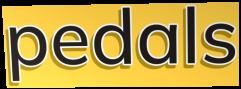
pedals